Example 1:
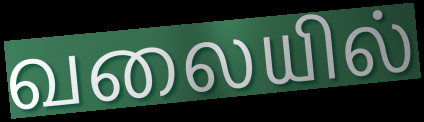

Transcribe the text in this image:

வலையில்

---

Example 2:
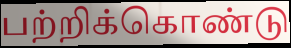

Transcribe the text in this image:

பற்றிக்கொண்டு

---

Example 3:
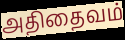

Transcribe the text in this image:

அதிதைவம்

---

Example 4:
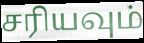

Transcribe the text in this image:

சரியவும்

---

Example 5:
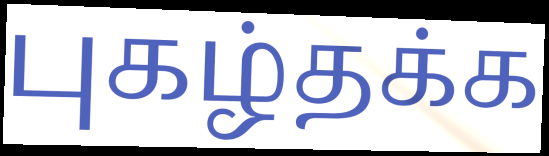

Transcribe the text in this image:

புகழ்தக்க